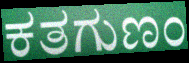
ಕತಗುಣಂ